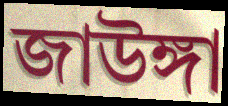
জাউঙ্গা